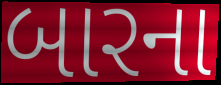
બારના